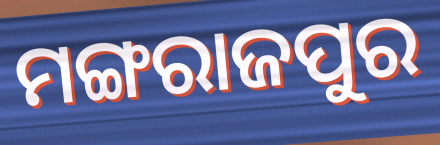
ମଙ୍ଗରାଜପୁର